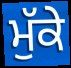
ਮੁੱਕੇ